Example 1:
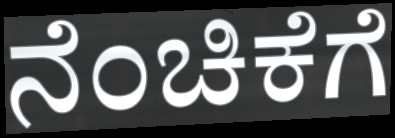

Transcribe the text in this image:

ನೆಂಚಿಕೆಗೆ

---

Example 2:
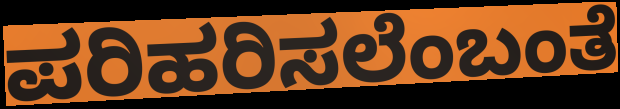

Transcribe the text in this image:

ಪರಿಹರಿಸಲೆಂಬಂತೆ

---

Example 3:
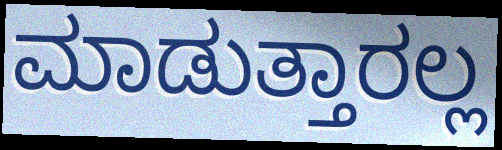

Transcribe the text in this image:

ಮಾಡುತ್ತಾರಲ್ಲ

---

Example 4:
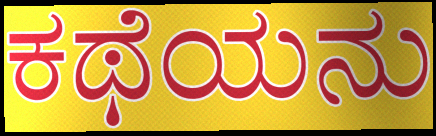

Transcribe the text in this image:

ಕಥೆಯನು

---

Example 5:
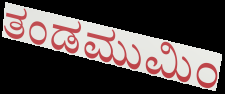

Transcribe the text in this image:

ತಂಡಮುಮಿಂ